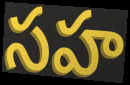
సహ